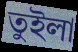
তুইলা